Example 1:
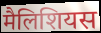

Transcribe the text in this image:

मैलिशियस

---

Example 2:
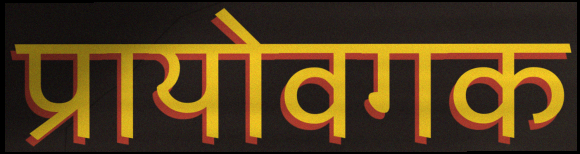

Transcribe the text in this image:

प्रायोवगक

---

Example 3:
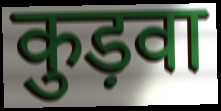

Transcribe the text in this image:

कुड़वा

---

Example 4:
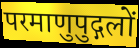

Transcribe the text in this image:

परमाणुपुद्गलों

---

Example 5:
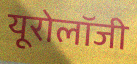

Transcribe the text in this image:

यूरोलॉजी